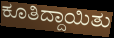
ಕೂತಿದ್ದಾಯಿತು